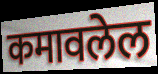
कमावलेल